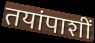
तयांपाशीं